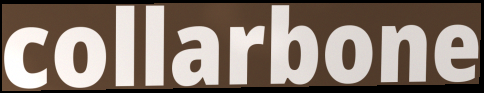
collarbone